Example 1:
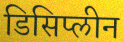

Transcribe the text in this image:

डिसिप्लीन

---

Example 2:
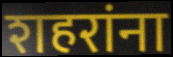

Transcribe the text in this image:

शहरांना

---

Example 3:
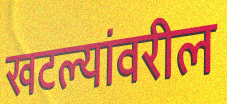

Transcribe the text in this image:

खटल्यांवरील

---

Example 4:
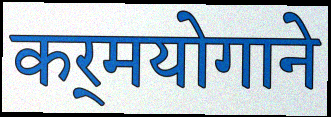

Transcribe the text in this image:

कर्मयोगाने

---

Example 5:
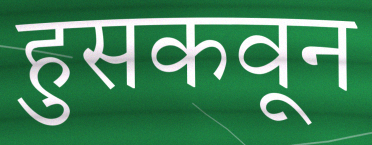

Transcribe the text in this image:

हुसकवून